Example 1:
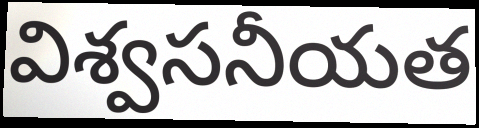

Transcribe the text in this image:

విశ్వసనీయత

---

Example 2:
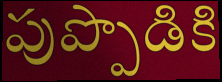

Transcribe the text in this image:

పుప్పొడికి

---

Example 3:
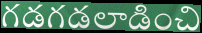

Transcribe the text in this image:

గడగడలాడించి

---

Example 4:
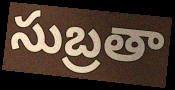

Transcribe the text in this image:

సుబ్రతా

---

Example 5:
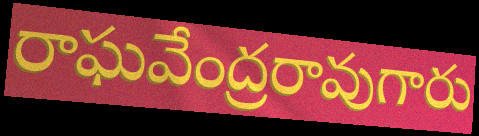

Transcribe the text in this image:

రాఘవేంద్రరావుగారు